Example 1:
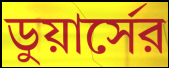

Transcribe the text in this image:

ডুয়ার্সের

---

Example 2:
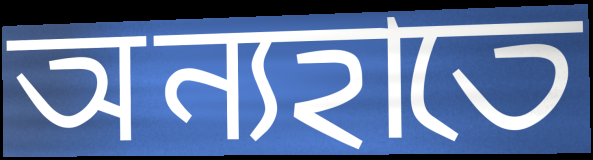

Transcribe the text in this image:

অন্যহাতে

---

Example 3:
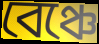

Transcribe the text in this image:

বেঞ্চে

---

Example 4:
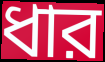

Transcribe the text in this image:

ধার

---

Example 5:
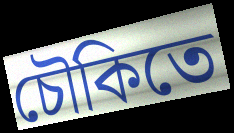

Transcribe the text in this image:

চৌকিতে